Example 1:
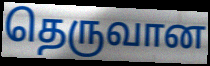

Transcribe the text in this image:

தெருவான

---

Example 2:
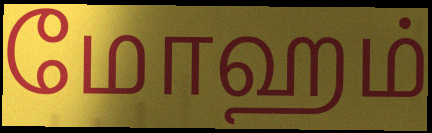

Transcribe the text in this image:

மோஹம்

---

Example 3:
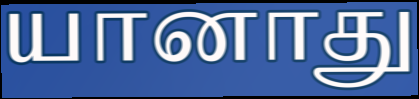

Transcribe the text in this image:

யானாது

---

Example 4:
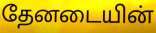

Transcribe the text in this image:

தேனடையின்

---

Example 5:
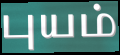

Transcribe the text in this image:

புயம்